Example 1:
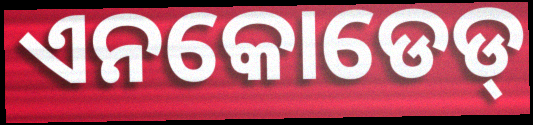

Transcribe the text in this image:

ଏନକୋଡେଡ୍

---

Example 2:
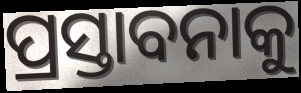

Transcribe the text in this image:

ପ୍ରସ୍ତାବନାକୁ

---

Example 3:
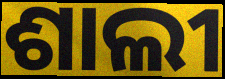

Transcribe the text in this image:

ଶାଲୀ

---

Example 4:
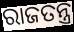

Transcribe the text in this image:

ରାଜତନ୍ତ୍ର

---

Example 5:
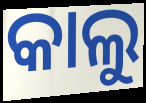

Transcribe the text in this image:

କାଲୁ